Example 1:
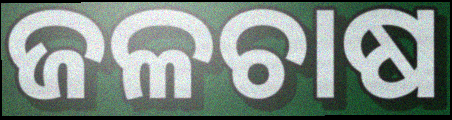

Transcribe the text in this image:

ଜଳଚାଷ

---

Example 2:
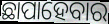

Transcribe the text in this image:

ଛାପାହେବାର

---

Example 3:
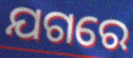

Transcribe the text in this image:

ଯଗରେ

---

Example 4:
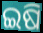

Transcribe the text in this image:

ଇଷି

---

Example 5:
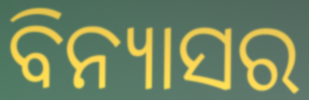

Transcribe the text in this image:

ବିନ୍ୟାସର